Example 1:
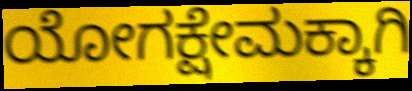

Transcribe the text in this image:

ಯೋಗಕ್ಷೇಮಕ್ಕಾಗಿ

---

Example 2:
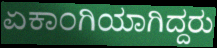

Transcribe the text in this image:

ಏಕಾಂಗಿಯಾಗಿದ್ದರು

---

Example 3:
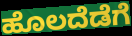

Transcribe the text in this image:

ಹೊಲದೆಡೆಗೆ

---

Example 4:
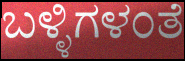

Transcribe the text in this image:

ಬಳ್ಳಿಗಳಂತೆ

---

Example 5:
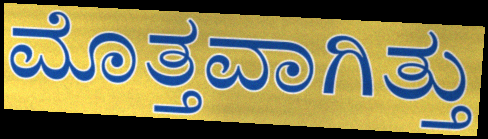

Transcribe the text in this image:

ಮೊತ್ತವಾಗಿತ್ತು